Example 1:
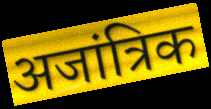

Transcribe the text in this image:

अजांत्रिक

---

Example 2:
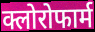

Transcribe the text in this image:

क्लोरोफार्म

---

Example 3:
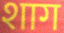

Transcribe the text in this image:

शाग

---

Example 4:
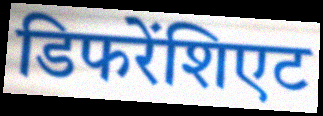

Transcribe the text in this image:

डिफरेंशिएट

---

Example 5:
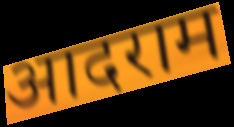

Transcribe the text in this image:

आदराम